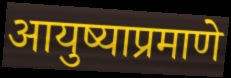
आयुष्याप्रमाणे